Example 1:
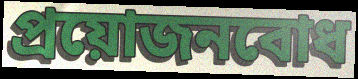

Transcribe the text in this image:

প্রয়োজনবোধ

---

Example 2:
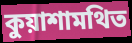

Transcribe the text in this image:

কুয়াশামথিত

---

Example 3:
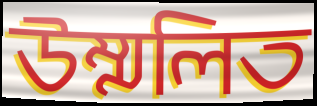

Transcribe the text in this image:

উম্মলিত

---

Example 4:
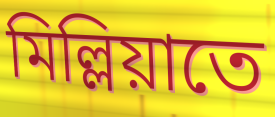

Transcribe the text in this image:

মিল্লিয়াতে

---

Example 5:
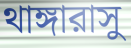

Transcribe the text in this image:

থাঙ্গারাসু